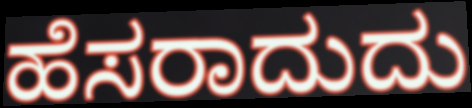
ಹೆಸರಾದುದು